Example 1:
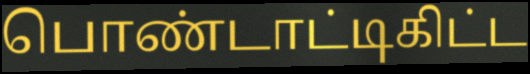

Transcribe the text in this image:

பொண்டாட்டிகிட்ட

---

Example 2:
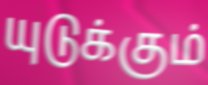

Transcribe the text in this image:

யுடுக்கும்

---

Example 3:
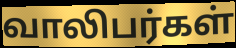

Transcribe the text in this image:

வாலிபர்கள்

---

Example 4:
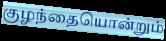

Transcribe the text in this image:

குழந்தையொன்றும்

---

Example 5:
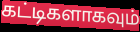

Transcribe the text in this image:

கட்டிகளாகவும்